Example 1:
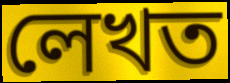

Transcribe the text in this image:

লেখত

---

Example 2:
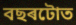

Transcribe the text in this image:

বছৰটোত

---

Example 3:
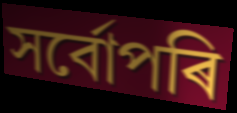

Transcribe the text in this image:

সৰ্বোপৰি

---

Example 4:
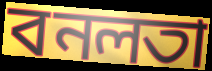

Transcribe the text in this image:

বনলতা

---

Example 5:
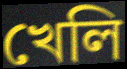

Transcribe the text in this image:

খেলি